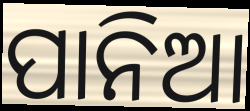
ପାନିଆ